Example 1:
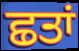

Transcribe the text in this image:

ਛਤਾਂ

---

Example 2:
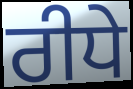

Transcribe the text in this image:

ਰੀਧੇ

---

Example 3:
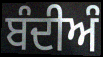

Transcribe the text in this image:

ਬੰਦੀਅੰ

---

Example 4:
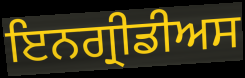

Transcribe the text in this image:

ਇਨਗ੍ਰੀਡੀਅਸ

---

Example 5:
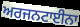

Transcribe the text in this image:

ਅਰਜਨਟਾਈਨਾ